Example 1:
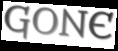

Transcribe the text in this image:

GONE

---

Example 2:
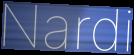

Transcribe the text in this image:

Nardi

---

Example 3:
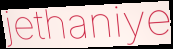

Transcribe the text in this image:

jethaniye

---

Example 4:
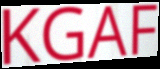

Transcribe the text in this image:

KGAF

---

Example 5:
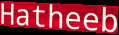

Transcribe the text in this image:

Hatheeb